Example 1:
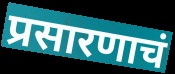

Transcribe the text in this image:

प्रसारणाचं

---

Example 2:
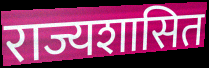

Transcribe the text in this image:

राज्यशासित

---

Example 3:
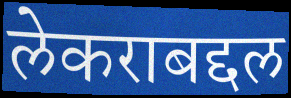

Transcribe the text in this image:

लेकराबद्दल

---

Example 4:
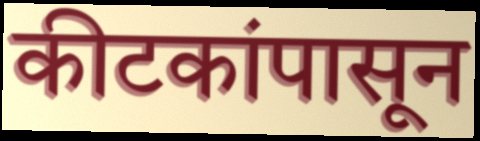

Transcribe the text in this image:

कीटकांपासून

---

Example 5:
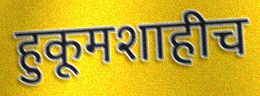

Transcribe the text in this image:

हुकूमशाहीच